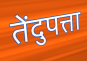
तेंदुपत्ता